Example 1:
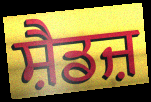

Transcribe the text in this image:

ਸ਼ੈਡਜ਼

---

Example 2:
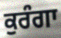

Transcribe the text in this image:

ਕੁਰੰਗਾ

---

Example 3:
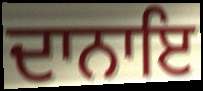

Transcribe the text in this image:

ਦਾਨਾਇ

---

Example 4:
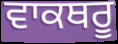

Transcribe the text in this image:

ਵਾਕਥਰੂ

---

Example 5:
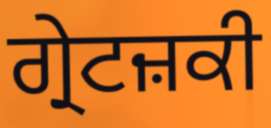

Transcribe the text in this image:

ਗ੍ਰੇਟਜ਼ਕੀ